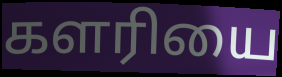
களரியை